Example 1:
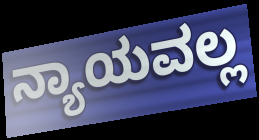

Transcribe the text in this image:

ನ್ಯಾಯವಲ್ಲ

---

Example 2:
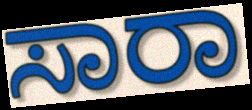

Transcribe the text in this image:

ಸಾರಾ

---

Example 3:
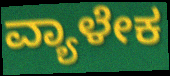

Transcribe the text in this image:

ವ್ಯಾಳೇಕ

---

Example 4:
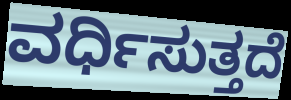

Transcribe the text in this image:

ವರ್ಧಿಸುತ್ತದೆ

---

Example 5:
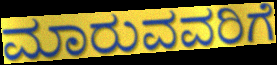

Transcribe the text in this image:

ಮಾರುವವರಿಗೆ